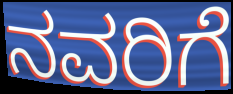
ನವರಿಗೆ